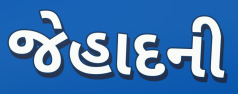
જેહાદની